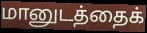
மானுடத்தைக்